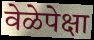
वेळेपेक्षा